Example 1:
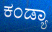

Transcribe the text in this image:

ಕಂಡ್ಯಾ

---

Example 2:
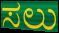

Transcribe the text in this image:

ಸಲು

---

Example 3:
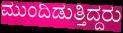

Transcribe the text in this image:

ಮುಂದಿಡುತ್ತಿದ್ದರು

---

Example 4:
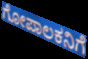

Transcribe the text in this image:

ಗೋಪಾಲಕನಿಗೆ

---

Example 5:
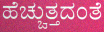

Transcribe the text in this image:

ಹೆಚ್ಚುತ್ತದಂತೆ